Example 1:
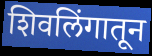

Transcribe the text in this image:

शिवलिंगातून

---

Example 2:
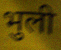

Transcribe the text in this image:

भुली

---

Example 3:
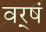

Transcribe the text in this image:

वर्षं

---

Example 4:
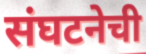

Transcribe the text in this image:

संघटनेची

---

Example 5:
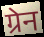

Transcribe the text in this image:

ग्रेन